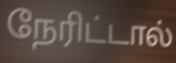
நேரிட்டால்